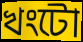
খংটো